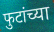
फुटांच्या